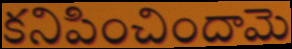
కనిపించిందామె